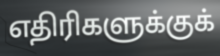
எதிரிகளுக்குக்